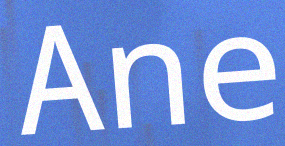
Ane